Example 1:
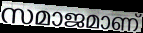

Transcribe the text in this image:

സമാജമാണ്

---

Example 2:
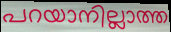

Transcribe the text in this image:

പറയാനില്ലാത്ത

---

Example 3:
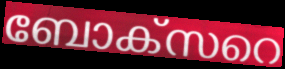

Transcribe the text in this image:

ബോക്‌സറെ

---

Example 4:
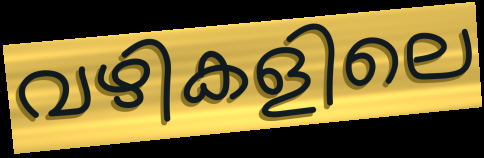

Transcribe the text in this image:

വഴികളിലെ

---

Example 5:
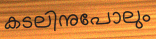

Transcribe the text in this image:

കടലിനുപോലും